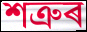
শত্ৰুৰ